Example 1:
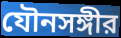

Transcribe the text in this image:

যৌনসঙ্গীর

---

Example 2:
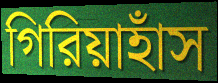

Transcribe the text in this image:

গিরিয়াহাঁস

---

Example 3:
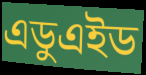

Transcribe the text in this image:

এডুএইড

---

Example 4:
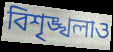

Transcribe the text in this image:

বিশৃঙ্খলাও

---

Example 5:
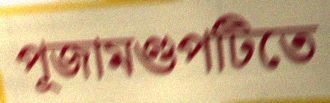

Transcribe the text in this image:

পূজামণ্ডপটিতে